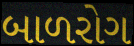
બાળરોગ